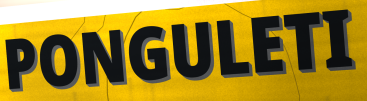
PONGULETI